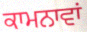
ਕਾਮਨਾਵਾਂ